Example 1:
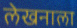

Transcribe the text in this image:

लेखनाला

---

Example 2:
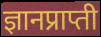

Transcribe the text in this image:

ज्ञानप्राप्ती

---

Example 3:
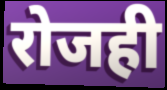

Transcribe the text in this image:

रोजही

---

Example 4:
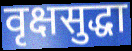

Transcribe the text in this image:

वृक्षसुद्धा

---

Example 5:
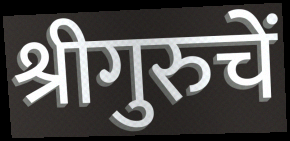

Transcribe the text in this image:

श्रीगुरुचें